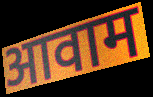
आवाम